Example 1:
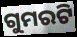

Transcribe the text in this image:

ଗୁମରଟି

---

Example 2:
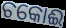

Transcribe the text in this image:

ଚକୋଈ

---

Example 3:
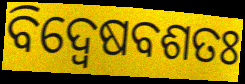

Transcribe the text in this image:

ବିଦ୍ୱେଷବଶତଃ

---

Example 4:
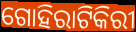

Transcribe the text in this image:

ଗୋହିରାଟିକିରୀ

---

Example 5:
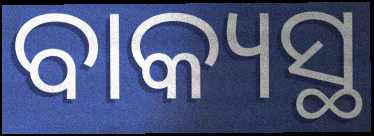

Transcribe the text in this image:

ବାକ୍ୟସ୍ଥ